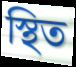
স্থিত